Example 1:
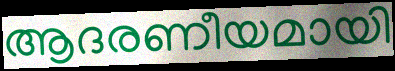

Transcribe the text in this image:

ആദരണീയമായി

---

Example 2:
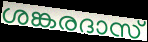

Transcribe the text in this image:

ശങ്കരദാസ്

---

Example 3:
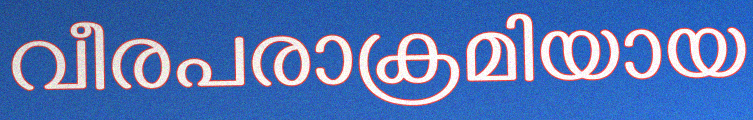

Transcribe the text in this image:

വീരപരാക്രമിയായ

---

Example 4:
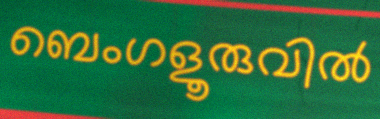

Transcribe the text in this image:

ബെംഗളൂരുവിൽ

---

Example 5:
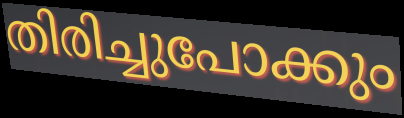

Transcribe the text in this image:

തിരിച്ചുപോക്കും